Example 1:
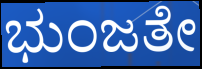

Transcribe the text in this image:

ಭುಂಜತೇ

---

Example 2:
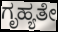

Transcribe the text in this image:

ಗೃಹ್ಯತೇ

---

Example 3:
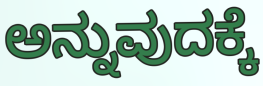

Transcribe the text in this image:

ಅನ್ನುವುದಕ್ಕೆ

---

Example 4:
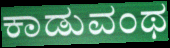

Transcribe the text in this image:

ಕಾಡುವಂಥ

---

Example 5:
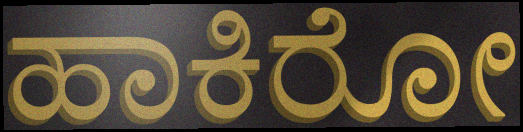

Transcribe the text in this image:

ಹಾಕಿರೋ